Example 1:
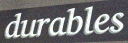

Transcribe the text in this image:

durables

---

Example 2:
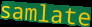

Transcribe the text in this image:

samlate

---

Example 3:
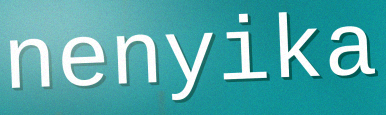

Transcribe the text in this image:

nenyika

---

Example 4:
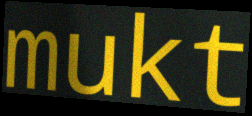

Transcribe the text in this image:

mukt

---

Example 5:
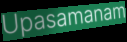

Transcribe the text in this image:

Upasamanam